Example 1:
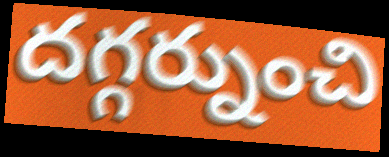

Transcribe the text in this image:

దగ్గర్నుంచి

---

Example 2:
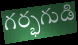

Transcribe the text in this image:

గర్భగుడి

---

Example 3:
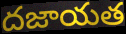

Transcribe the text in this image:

దజాయత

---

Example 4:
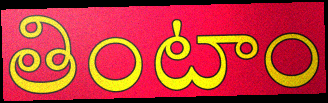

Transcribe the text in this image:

తింటాం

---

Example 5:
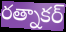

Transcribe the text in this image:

రత్నాకర్